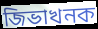
জিভাখনক